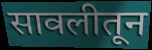
सावलीतून